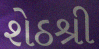
શેઠશ્રી